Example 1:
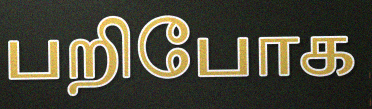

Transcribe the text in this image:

பறிபோக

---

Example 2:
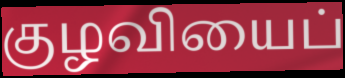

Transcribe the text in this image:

குழவியைப்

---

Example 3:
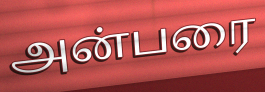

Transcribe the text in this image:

அன்பரை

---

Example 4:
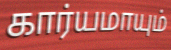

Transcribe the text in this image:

கார்யமாயும்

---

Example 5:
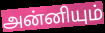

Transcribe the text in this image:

அன்னியும்